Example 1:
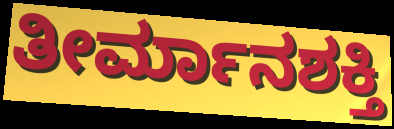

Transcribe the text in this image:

ತೀರ್ಮಾನಶಕ್ತಿ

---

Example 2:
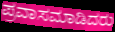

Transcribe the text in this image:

ಪ್ರವಾಸಮಾಡಿದರು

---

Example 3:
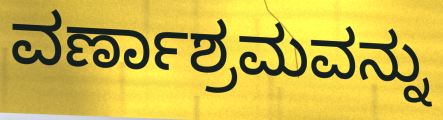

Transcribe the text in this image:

ವರ್ಣಾಶ್ರಮವನ್ನು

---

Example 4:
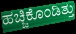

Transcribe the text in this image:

ಹಚ್ಚಿಕೊಂಡಿತ್ತು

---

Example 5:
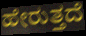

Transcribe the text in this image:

ಹೇರುತ್ತದೆ